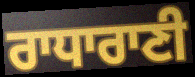
ਰਾਧਾਰਾਣੀ